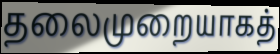
தலைமுறையாகத்